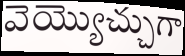
వెయ్యొచ్చుగా